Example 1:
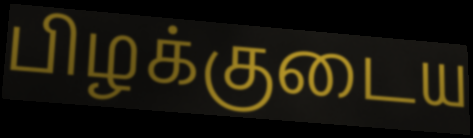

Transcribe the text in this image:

பிழக்குடைய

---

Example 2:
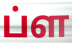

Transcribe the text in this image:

ப்ள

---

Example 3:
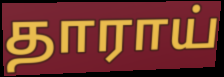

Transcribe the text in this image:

தாராய்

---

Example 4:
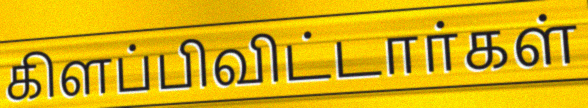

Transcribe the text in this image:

கிளப்பிவிட்டார்கள்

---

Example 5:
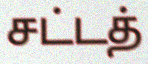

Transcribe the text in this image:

சட்டத்